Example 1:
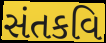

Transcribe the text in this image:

સંતકવિ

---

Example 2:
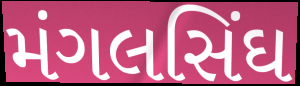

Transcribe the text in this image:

મંગલસિંઘ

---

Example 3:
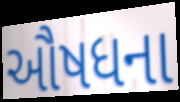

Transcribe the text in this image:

ઔષધના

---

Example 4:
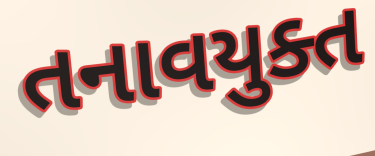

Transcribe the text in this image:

તનાવયુક્ત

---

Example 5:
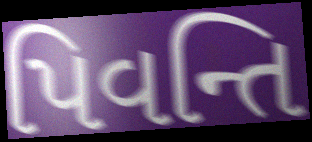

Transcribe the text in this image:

પિવન્તિ